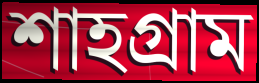
শাহগ্রাম